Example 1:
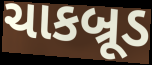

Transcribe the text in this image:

ચાકબ્રૂડ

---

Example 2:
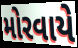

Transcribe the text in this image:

મોરવાયે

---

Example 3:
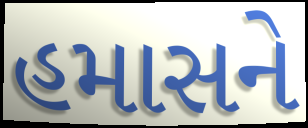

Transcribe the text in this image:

હમાસને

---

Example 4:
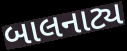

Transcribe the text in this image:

બાલનાટ્ય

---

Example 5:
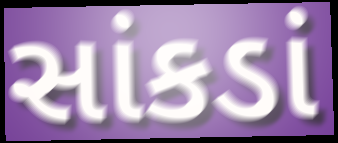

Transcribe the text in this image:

સાંકડાં